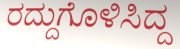
ರದ್ದುಗೊಳಿಸಿದ್ದ